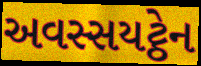
અવસ્સયટ્ઠેન